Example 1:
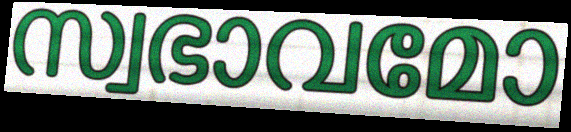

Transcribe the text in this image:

സ്വഭാവമോ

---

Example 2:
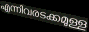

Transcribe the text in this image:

എന്നിവരടക്കമുള്ള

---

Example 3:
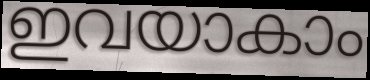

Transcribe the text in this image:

ഇവയാകാം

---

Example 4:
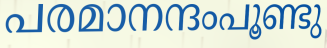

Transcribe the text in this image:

പരമാനന്ദംപൂണ്ടു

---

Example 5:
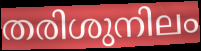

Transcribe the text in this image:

തരിശുനിലം